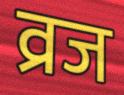
व्रज